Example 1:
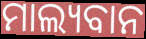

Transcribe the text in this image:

ମାଲ୍ୟବାନ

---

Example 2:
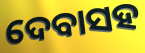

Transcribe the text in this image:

ଦେବାସହ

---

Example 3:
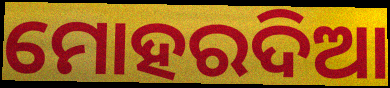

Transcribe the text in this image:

ମୋହରଦିଆ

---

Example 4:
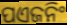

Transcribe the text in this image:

ପଏଜନିଂ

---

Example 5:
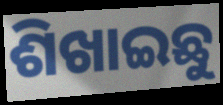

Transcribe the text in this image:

ଶିଖାଇଛୁ